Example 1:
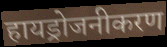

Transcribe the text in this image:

हायड्रोजनीकरण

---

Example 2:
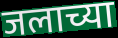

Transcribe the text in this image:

जलाच्या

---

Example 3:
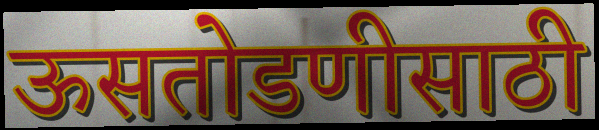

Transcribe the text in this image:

ऊसतोडणीसाठी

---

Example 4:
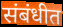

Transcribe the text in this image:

संबंधीत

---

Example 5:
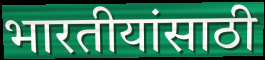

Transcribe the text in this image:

भारतीयांसाठी